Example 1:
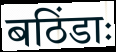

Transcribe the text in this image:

बठिंडाः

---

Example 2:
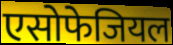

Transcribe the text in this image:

एसोफेजियल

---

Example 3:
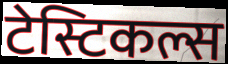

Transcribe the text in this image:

टेस्टिकल्स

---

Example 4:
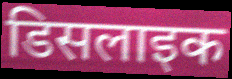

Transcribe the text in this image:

डिसलाइक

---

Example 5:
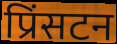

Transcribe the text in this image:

प्रिंसटन